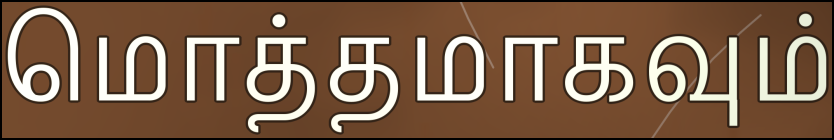
மொத்தமாகவும்